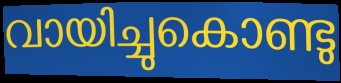
വായിച്ചുകൊണ്ടു